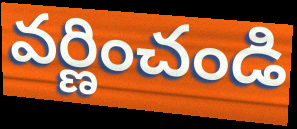
వర్ణించండి